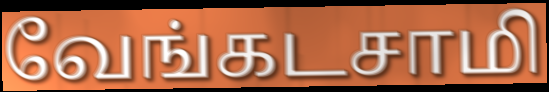
வேங்கடசாமி